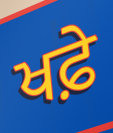
ਖਫ਼ੇ